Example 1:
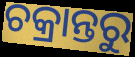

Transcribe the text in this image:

ଚକ୍ରାନ୍ତରୁ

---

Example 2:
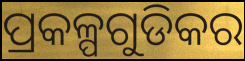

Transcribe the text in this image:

ପ୍ରକଳ୍ପଗୁଡିକର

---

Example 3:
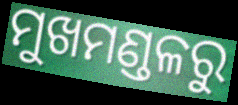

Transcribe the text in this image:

ମୁଖମଣ୍ଡଳରୁ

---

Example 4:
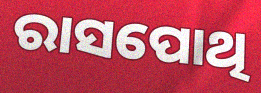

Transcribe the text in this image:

ରାସପୋଥି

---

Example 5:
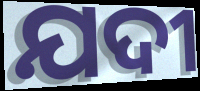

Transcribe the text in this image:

ଯଦୀ